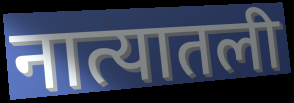
नात्यातली